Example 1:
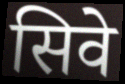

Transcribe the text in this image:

सिवे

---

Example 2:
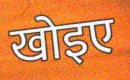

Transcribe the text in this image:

खोइए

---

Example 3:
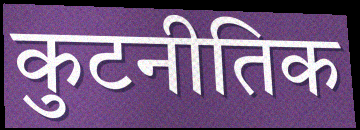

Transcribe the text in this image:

कुटनीतिक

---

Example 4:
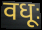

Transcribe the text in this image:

वधूः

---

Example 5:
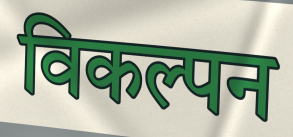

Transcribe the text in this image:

विकल्पन